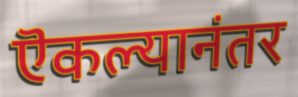
ऎकल्यानंतर